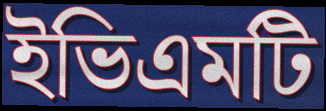
ইভিএমটি